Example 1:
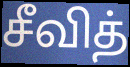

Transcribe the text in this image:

சீவித்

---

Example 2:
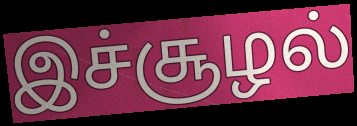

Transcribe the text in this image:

இச்சூழல்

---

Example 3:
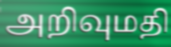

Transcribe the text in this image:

அறிவுமதி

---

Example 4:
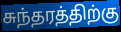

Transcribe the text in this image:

சுந்தரத்திற்கு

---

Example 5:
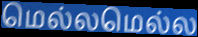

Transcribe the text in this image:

மெல்லமெல்ல